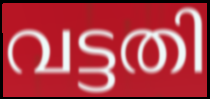
വട്ടതി